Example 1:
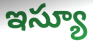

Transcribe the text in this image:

ఇస్యూ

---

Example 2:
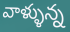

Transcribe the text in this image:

వాళ్ళున్న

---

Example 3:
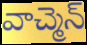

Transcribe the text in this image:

వాచ్మెన్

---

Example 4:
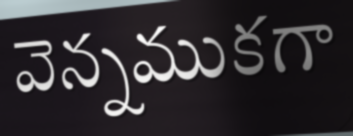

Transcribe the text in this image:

వెన్నముకగా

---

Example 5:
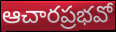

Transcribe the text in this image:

ఆచారప్రభవో